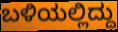
ಬಳಿಯಲ್ಲಿದ್ದು